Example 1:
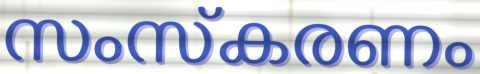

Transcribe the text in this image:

സംസ്‌കരണം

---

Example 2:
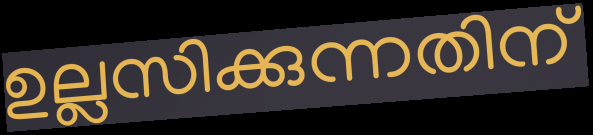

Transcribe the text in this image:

ഉല്ലസിക്കുന്നതിന്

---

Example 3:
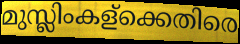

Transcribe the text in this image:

മുസ്ലിംകള്ക്കെതിരെ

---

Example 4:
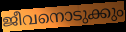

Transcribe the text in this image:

ജീവനൊടുക്കും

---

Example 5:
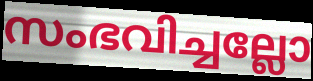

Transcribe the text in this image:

സംഭവിച്ചല്ലോ